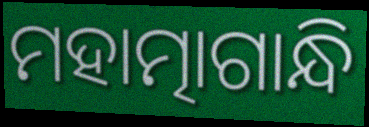
ମହାତ୍ମାଗାନ୍ଧି